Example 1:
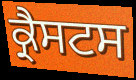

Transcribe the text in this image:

ਕ੍ਰੈਸਟਸ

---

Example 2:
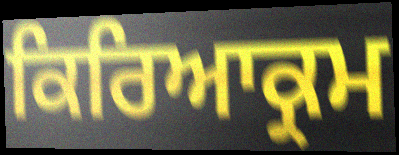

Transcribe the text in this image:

ਕਿਰਿਆਕ੍ਰਮ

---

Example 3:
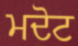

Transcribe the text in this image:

ਮਦੋਟ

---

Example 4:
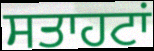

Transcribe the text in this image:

ਸਤਾਹਟਾਂ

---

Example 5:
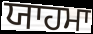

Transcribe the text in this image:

ਯਾਹਮਾ